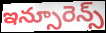
ఇన్సూరెన్స్